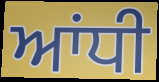
ਆਂਧੀ